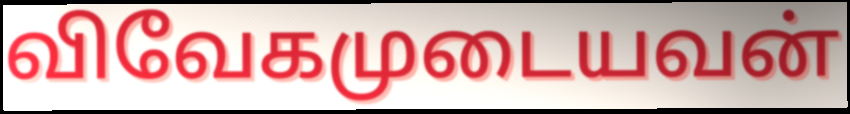
விவேகமுடையவன்